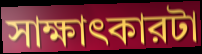
সাক্ষাৎকারটা